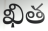
ఖిత